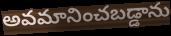
అవమానించబడ్డాను